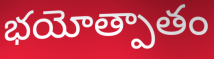
భయోత్పాతం